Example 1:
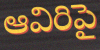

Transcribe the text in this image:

ఆవిరిపై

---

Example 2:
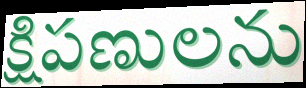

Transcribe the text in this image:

క్షిపణులను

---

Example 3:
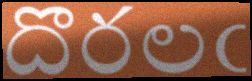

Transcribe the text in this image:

దొరలఁ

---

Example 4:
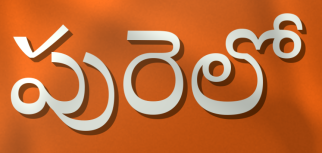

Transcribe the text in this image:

పురెలో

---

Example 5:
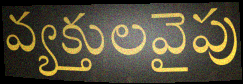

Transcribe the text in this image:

వ్యక్తులవైపు